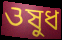
ওষুধ